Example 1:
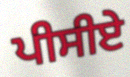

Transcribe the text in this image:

ਪੀਸੀਏ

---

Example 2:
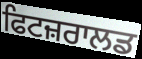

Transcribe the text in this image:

ਫਿਟਜ਼ਰਾਲਡ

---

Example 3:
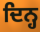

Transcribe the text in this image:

ਦਿਨ੍ਹ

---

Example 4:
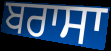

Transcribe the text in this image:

ਬਰਾਸਾ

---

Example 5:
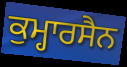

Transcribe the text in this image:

ਕੁਮ੍ਹਾਰਸੈਨ